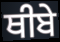
ਥੀਬੇ